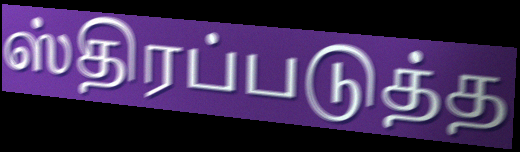
ஸ்திரப்படுத்த